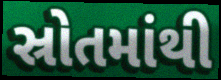
સ્રોતમાંથી